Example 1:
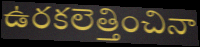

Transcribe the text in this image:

ఉరకలెత్తించినా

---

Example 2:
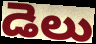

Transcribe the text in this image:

డెలు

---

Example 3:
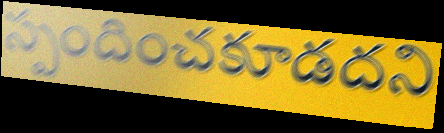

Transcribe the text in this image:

స్పందించకూడదని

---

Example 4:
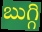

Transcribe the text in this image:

బుగ్గి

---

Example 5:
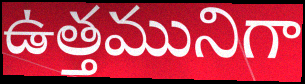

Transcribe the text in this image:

ఉత్తమునిగా